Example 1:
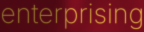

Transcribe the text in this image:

enterprising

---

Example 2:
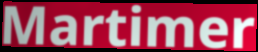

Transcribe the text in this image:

Martimer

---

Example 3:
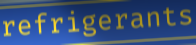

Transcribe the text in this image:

refrigerants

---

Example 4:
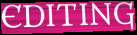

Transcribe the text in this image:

EDITING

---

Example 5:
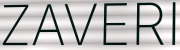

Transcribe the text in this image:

ZAVERI